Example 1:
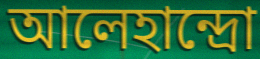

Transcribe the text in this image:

আলেহান্দ্রো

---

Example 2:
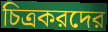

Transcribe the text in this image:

চিত্রকরদের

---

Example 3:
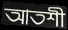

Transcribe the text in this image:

আতশী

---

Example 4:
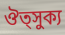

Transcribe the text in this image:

ঔত্সুক্য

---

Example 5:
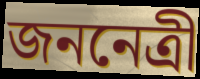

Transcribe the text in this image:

জননেত্রী